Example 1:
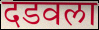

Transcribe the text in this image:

दडवला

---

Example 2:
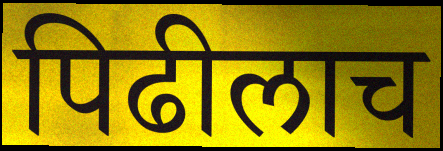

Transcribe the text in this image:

पिढीलाच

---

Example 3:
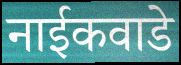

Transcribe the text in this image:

नाईकवाडे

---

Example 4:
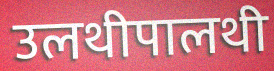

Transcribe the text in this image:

उलथीपालथी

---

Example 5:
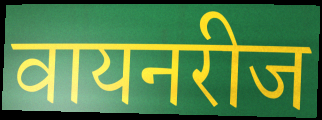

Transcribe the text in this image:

वायनरीज